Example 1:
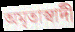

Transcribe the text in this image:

অমৃতাস্বাদী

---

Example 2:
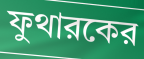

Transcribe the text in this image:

ফুথারকের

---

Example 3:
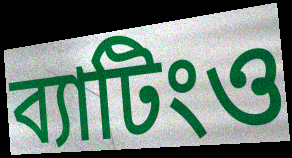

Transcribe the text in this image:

ব্যাটিংও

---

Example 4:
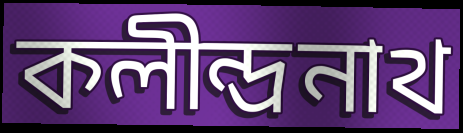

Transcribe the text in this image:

কলীন্দ্রনাথ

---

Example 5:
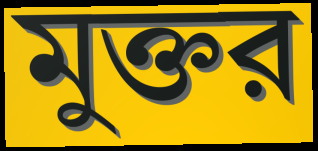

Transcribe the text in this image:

মুক্তর